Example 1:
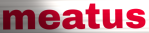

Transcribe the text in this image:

meatus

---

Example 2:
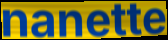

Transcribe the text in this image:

nanette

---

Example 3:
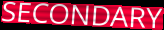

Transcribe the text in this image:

SECONDARY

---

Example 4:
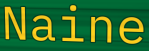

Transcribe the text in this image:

Naine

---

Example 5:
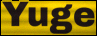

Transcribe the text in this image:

Yuge